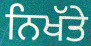
ਨਿਖੱਤੇ